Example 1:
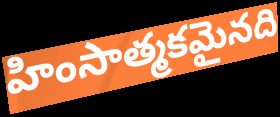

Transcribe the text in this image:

హింసాత్మకమైనది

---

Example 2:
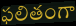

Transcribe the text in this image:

ఫలితంగా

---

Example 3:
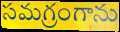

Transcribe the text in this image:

సమగ్రంగాను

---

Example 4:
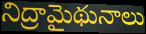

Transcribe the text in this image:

నిద్రామైథునాలు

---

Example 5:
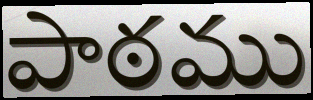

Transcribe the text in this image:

పాఠము